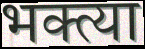
भक्त्या